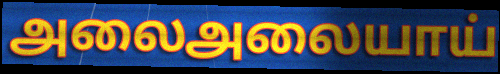
அலைஅலையாய்